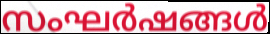
സംഘർഷങ്ങൾ